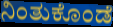
ನಿಂತುಕೊಂಡೆ